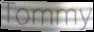
Tommy